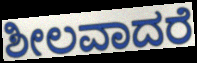
ಶೀಲವಾದರೆ